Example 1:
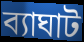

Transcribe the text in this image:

ব্যাঘাট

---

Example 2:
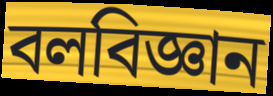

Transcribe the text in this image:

বলবিজ্ঞান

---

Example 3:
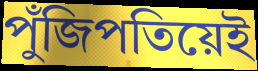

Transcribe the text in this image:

পুঁজিপতিয়েই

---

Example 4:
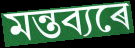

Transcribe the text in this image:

মন্তব্যৰে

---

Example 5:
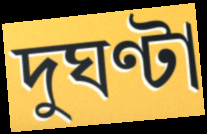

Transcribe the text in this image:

দুঘণ্টা